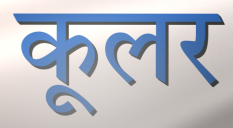
कूलर